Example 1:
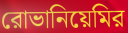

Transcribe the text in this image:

রোভানিয়েমির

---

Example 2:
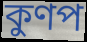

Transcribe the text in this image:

কুণপ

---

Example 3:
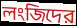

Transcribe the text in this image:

লংজিদের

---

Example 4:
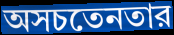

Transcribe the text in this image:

অসচতেনতার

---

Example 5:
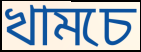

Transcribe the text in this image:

খামচে